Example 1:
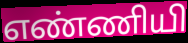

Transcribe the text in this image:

எண்ணியி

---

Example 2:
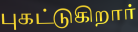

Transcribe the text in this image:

புகட்டுகிறார்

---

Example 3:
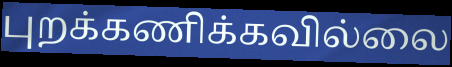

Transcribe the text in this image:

புறக்கணிக்கவில்லை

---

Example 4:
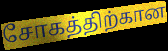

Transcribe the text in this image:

சோகத்திற்கான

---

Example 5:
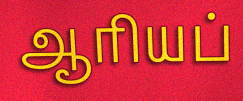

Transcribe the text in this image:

ஆரியப்